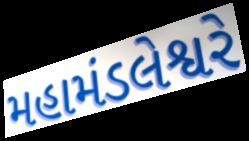
મહામંડલેશ્વરે